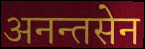
अनन्तसेन